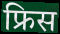
फ्रिस